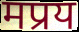
मप्रय